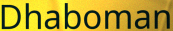
Dhaboman